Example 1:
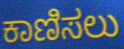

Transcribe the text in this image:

ಕಾಣಿಸಲು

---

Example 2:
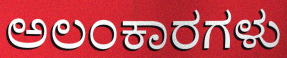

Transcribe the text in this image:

ಅಲಂಕಾರಗಳು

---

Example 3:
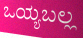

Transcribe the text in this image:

ಒಯ್ಯಬಲ್ಲ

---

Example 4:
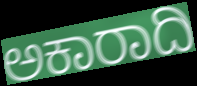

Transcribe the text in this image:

ಅಕಾರಾದಿ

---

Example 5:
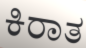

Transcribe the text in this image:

ಕಿರಾತ